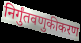
निर्गुंतवणुकीकरण